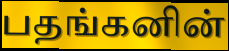
பதங்கனின்